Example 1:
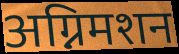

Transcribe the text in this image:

अग्निमशन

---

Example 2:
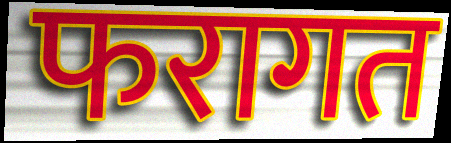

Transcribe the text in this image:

फरागत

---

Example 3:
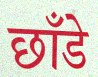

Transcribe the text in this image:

छाँडे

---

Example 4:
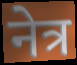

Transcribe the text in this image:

नेत्र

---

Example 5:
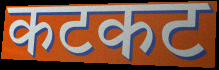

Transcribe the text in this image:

कटकट